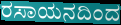
ರಸಾಯನದಿಂದ